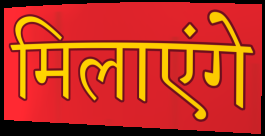
मिलाएंगे